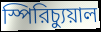
স্পিরিচ্যুয়াল